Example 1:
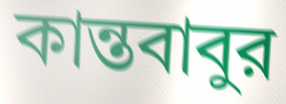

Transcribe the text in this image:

কান্তবাবুর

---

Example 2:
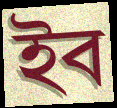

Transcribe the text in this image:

ইব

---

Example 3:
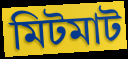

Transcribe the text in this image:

মিটমাট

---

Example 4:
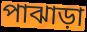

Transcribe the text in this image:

পাঝাড়া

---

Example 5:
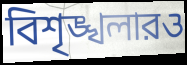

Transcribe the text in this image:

বিশৃঙ্খলারও